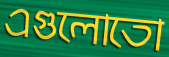
এগুলোতো